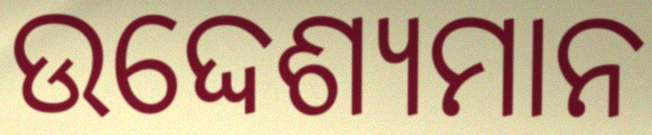
ଉଦ୍ଦେଶ୍ୟମାନ